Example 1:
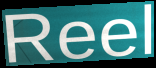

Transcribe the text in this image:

Reel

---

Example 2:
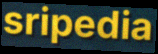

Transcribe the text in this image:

sripedia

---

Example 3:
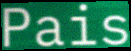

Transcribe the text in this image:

Pais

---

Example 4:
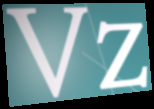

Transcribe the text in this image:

Vz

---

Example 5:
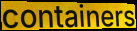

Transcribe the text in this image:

containers